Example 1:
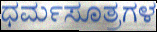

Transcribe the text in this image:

ಧರ್ಮಸೂತ್ರಗಳ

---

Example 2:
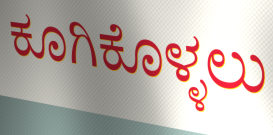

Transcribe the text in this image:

ಕೂಗಿಕೊಳ್ಳಲು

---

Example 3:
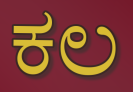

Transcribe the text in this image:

ಕಲ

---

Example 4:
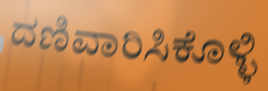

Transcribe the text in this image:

ದಣಿವಾರಿಸಿಕೊಳ್ಳಿ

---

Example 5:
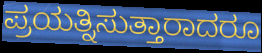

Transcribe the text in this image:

ಪ್ರಯತ್ನಿಸುತ್ತಾರಾದರೂ